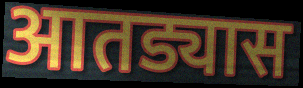
आतड्यास